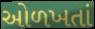
ઓળખતાં